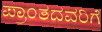
ಪ್ರಾಂತದವರಿಗೆ